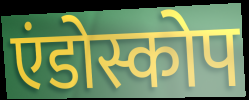
एंडोस्कोप